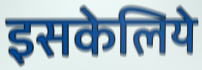
इसकेलिये